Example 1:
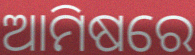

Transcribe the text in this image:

ଆମିଷରେ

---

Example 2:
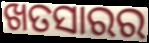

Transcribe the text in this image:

ଖତସାରର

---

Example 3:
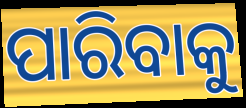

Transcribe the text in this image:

ପାରିବାକୁ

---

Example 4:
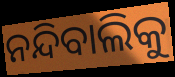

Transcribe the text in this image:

ନନ୍ଦିବାଲିକୁ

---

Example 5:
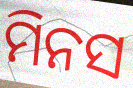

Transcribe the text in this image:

ମିନସ